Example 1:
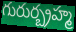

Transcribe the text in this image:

గురుర్బ్రహ్మ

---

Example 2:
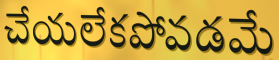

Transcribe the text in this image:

చేయలేకపోవడమే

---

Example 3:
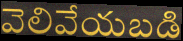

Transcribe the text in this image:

వెలివేయబడి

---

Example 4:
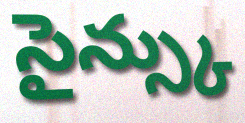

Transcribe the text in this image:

సైన్స్కు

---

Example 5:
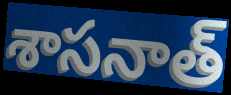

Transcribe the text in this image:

శాసనాత్